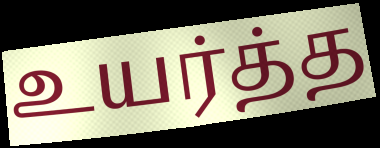
உயர்த்த